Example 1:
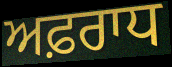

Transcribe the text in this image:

ਅਫ਼ਰਾਧ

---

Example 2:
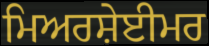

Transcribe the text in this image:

ਮਿਅਰਸ਼ੇਈਮਰ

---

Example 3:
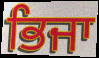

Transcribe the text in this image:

ਭਿਜਾ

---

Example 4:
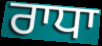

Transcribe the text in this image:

ਰਾਧਾ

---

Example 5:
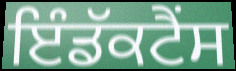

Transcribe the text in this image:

ਇੰਡੱਕਟੈਂਸ